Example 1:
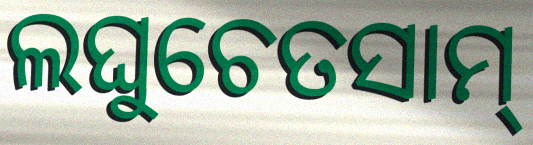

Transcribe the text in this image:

ଲଘୁଚେତସାମ୍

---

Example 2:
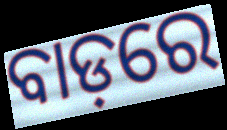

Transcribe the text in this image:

ବାଡ଼ରେ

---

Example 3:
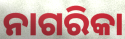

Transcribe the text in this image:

ନାଗରିକା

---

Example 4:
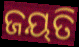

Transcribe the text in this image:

ଜୟତି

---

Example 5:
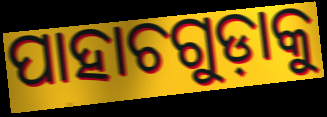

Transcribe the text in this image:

ପାହାଚଗୁଡ଼ାକୁ